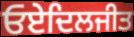
ਓਏਦਿਲਜੀਤ